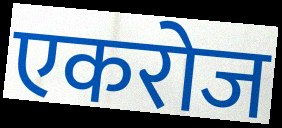
एकरोज